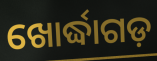
ଖୋର୍ଦ୍ଧାଗଡ଼